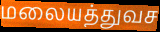
மலையத்துவச